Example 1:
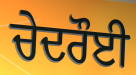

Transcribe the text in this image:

ਚੇਦਰੌਈ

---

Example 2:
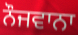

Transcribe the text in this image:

ਨੌਜਵਾਨਾ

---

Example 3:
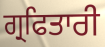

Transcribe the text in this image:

ਗ੍ਰਫਿਤਾਰੀ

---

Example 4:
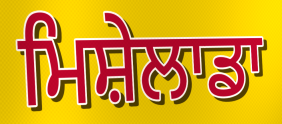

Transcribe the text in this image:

ਮਿਸ਼ੇਲਾਡਾ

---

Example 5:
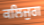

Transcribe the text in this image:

ਕਲਿਜੁਗ